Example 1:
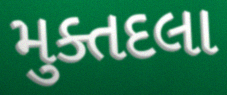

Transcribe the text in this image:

મુક્તદલા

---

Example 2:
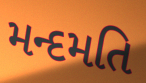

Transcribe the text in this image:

મન્દમતિ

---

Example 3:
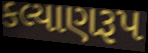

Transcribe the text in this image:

કલ્યાણરૂપ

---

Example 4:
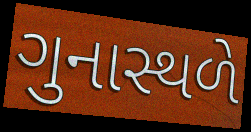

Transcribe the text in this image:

ગુનાસ્થળે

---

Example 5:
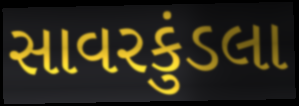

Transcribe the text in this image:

સાવરકુંડલા